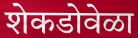
शेकडोवेळा